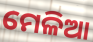
ମେଳିଆ